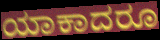
ಯಾಕಾದರೂ